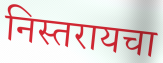
निस्तरायचा